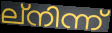
ല്നിന്ന്